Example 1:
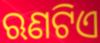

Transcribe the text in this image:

ଋଣଟିଏ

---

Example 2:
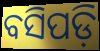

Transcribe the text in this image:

ବସିପଡ଼ି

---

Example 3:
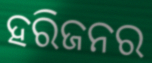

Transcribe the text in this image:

ହରିଜନର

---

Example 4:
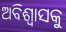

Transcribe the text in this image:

ଅବିଶ୍ୱାସକୁ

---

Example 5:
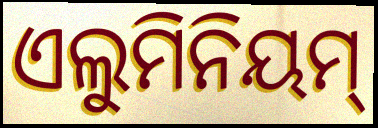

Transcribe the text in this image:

ଏଲୁମିନିୟମ୍